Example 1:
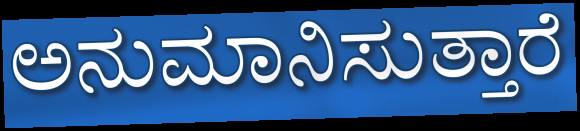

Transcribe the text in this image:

ಅನುಮಾನಿಸುತ್ತಾರೆ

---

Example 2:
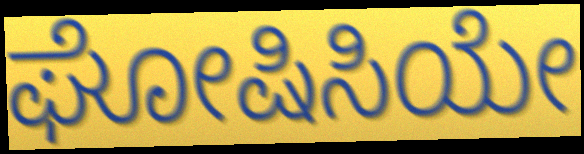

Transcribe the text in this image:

ಘೋಷಿಸಿಯೇ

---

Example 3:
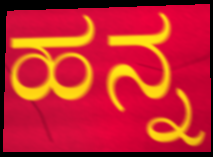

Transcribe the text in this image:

ಹನ್ನ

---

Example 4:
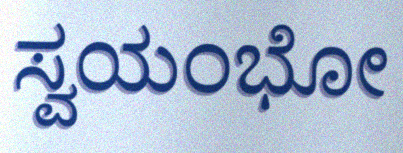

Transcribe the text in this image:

ಸ್ವಯಂಭೋ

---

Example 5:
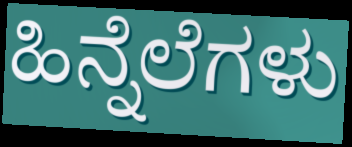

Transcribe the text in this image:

ಹಿನ್ನೆಲೆಗಳು